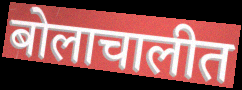
बोलाचालीत